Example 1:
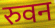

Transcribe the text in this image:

रुवन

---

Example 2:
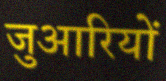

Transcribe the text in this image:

जुआरियों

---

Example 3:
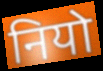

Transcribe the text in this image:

नियो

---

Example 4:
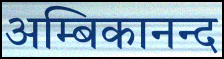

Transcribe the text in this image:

अम्बिकानन्द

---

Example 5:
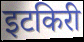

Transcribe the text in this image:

इटकिरी